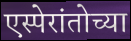
एस्पेरांतोच्या